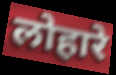
लोहारे